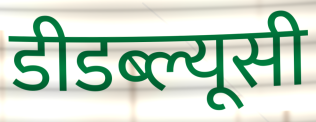
डीडब्ल्यूसी